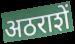
अठराशें